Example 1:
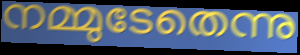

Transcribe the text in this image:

നമ്മുടേതെന്നു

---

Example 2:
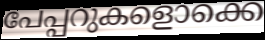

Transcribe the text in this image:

പേപ്പറുകളൊക്കെ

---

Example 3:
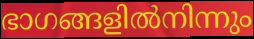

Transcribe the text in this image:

ഭാഗങ്ങളിൽനിന്നും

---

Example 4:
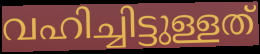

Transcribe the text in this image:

വഹിച്ചിട്ടുള്ളത്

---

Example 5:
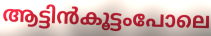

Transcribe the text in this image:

ആട്ടിൻകൂട്ടംപോലെ